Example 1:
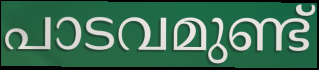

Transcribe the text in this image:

പാടവമുണ്ട്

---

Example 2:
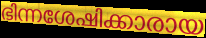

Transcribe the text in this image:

ഭിന്നശേഷിക്കാരായ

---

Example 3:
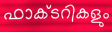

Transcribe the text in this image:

ഫാക്ടറികളും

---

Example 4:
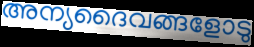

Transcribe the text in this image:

അന്യദൈവങ്ങളോടു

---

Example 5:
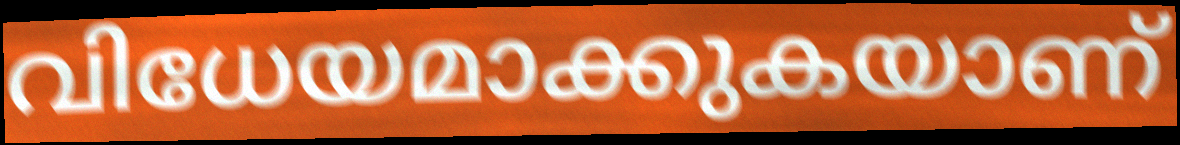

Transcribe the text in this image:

വിധേയമാക്കുകയാണ്